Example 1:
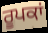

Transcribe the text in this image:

ਰੂਪਕਾਂ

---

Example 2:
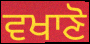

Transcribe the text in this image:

ਵਖਾਣੋ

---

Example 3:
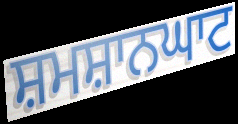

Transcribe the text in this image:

ਸ਼ਮਸ਼ਾਨਘਾਟ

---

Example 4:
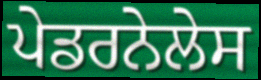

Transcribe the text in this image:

ਪੇਡਰਨੇਲੇਸ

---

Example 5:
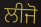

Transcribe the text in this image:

ਲੀਜੋ